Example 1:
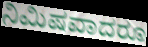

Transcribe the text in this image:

ನಿಮಿಷವಾದರೂ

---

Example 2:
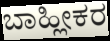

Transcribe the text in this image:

ಬಾಹ್ಲೀಕರ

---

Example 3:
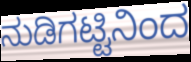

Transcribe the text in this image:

ನುಡಿಗಟ್ಟಿನಿಂದ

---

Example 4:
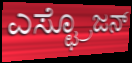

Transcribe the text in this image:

ಎಸ್ಟ್ರೊಜನ್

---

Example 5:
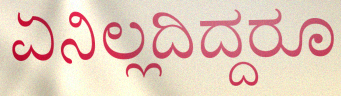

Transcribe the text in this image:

ಏನಿಲ್ಲದಿದ್ದರೂ